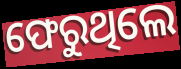
ଫେରୁଥିଲେ